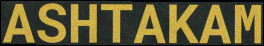
ASHTAKAM